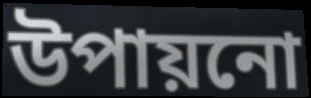
উপায়নো